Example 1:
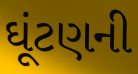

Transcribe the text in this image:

ઘૂંટણની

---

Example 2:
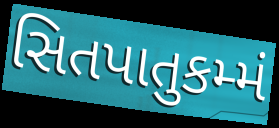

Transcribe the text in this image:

સિતપાતુકમ્મં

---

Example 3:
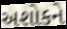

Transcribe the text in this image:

અશોકને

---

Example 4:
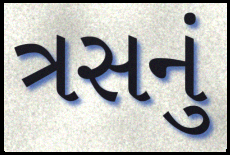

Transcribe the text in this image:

ત્રસનું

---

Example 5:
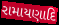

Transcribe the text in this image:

રામાયણાદિ